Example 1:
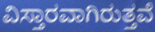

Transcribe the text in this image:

ವಿಸ್ತಾರವಾಗಿರುತ್ತವೆ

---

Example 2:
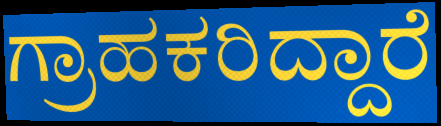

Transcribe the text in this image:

ಗ್ರಾಹಕರಿದ್ದಾರೆ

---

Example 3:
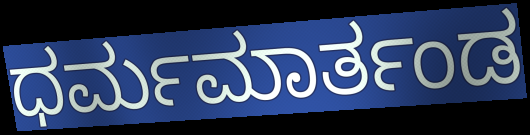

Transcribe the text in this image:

ಧರ್ಮಮಾರ್ತಂಡ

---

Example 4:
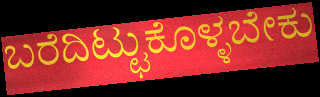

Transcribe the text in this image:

ಬರೆದಿಟ್ಟುಕೊಳ್ಳಬೇಕು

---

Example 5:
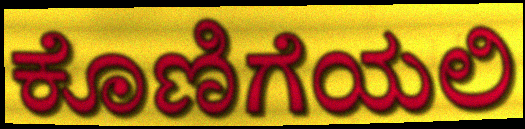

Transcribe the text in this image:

ಕೊಣಿಗೆಯಲಿ